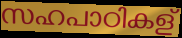
സഹപാഠികള്